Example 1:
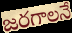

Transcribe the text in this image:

జరగాలనే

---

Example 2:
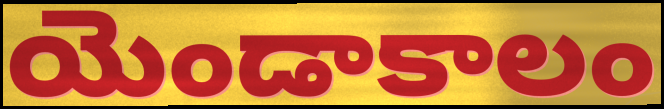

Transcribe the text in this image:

యెండాకాలం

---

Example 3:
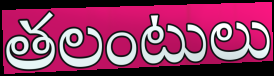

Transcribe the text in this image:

తలంటులు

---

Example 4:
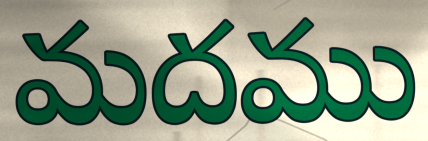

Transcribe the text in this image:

మదము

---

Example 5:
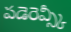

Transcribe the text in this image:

పడెరెవ్స్కీ